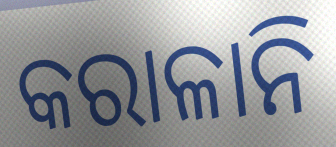
କରାଳାନି